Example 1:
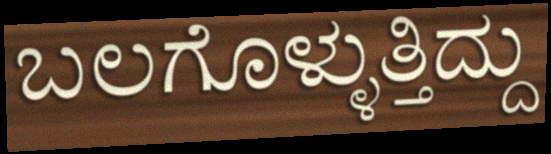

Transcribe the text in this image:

ಬಲಗೊಳ್ಳುತ್ತಿದ್ದು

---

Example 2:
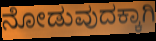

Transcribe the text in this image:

ನೋಡುವುದಕ್ಕಾಗಿ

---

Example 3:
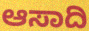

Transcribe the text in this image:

ಆಸಾದಿ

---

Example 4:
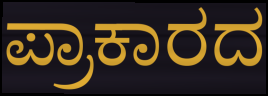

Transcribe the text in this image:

ಪ್ರಾಕಾರದ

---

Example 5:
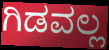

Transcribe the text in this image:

ಗಿಡವಲ್ಲ